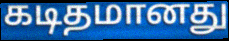
கடிதமானது